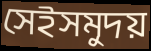
সেইসমুদয়